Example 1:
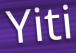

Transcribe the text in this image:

Yiti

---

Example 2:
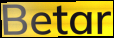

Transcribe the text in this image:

Betar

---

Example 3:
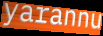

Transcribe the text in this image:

yarannu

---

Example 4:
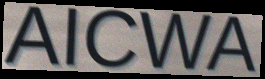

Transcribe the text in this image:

AICWA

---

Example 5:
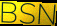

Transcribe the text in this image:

BSN